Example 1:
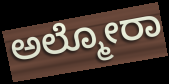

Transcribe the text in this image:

ಅಲ್ಮೋರಾ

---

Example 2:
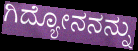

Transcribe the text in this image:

ಗಿದ್ಯೋನನನ್ನು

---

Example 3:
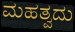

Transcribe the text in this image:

ಮಹತ್ವದು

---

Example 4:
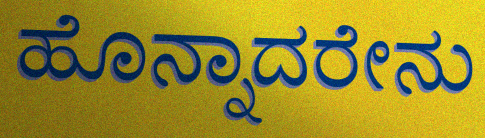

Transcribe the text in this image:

ಹೊನ್ನಾದರೇನು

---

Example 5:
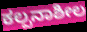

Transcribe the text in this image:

ಕಲ್ಪನಾಶೀಲ